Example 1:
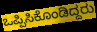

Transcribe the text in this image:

ಒಪ್ಪಿಸಿಕೊಂಡಿದ್ದರು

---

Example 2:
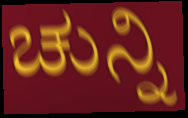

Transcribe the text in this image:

ಚುನ್ನಿ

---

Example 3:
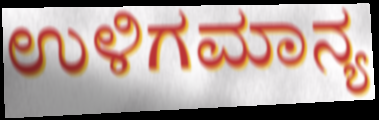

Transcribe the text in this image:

ಉಳಿಗಮಾನ್ಯ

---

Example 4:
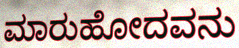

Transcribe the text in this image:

ಮಾರುಹೋದವನು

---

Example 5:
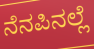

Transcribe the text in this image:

ನೆನಪಿನಲ್ಲೆ